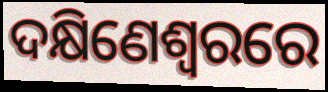
ଦକ୍ଷିଣେଶ୍ୱରରେ